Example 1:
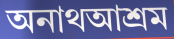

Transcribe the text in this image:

অনাথআশ্রম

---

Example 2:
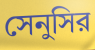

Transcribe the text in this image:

সেনুসির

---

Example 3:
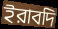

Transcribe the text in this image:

ইরাবদি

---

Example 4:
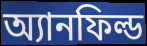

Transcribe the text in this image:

অ্যানফিল্ড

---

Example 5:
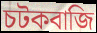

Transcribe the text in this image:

চটকবাজি